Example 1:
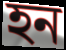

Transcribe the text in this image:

হন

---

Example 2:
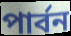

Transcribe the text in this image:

পাৰ্বন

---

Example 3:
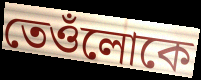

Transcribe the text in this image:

তেওঁলোকে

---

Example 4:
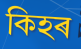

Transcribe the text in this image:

কিহৰ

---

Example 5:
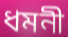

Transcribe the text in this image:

ধমনী